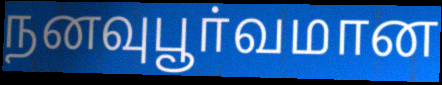
நனவுபூர்வமான